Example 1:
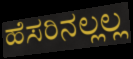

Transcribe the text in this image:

ಹೆಸರಿನಲ್ಲಲ್ಲ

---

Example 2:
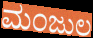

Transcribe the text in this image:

ಮಂಜುಲ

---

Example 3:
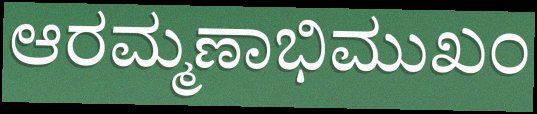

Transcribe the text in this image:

ಆರಮ್ಮಣಾಭಿಮುಖಂ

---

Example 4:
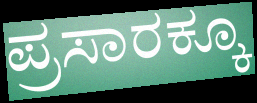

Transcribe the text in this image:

ಪ್ರಸಾರಕ್ಕೂ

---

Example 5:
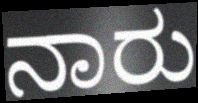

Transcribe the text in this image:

ನಾರು